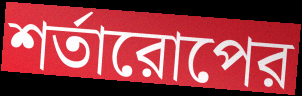
শর্তারোপের